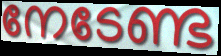
നേടേണ്ട